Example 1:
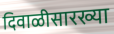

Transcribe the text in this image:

दिवाळीसारख्या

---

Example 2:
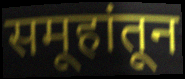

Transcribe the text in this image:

समूहांतून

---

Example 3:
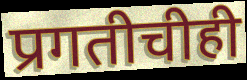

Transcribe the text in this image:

प्रगतीचीही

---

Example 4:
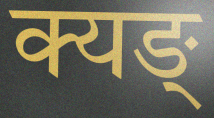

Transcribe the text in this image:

क्यङ्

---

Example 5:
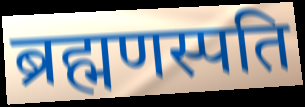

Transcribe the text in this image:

ब्रह्मणस्पति